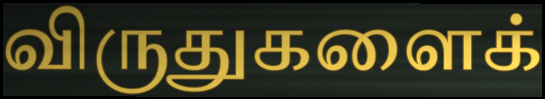
விருதுகளைக்